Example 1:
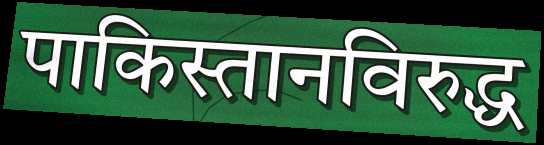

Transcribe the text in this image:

पाकिस्तानविरुद्ध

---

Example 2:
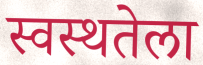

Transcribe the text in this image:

स्वस्थतेला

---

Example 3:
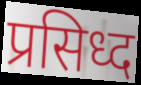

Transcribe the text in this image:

प्रसिध्द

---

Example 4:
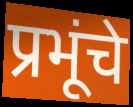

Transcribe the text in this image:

प्रभूंचे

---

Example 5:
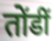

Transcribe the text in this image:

तोंडीं